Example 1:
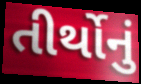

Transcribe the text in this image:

તીર્થોનું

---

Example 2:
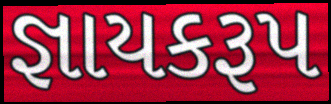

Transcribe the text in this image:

જ્ઞાયકરૂપ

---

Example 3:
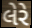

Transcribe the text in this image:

લેરે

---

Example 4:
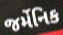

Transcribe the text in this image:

જર્મેનિક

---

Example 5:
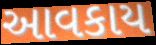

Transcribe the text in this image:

આવકાય